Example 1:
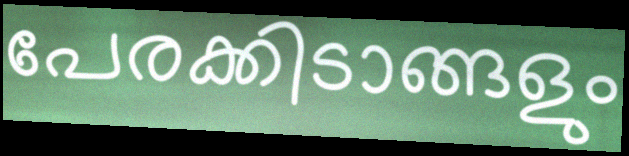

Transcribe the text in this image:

പേരക്കിടാങ്ങളും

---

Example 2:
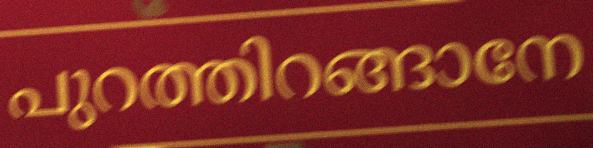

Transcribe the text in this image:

പുറത്തിറങ്ങാനേ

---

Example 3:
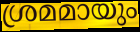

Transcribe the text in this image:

ശ്രമമായും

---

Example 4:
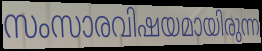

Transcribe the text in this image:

സംസാരവിഷയമായിരുന്ന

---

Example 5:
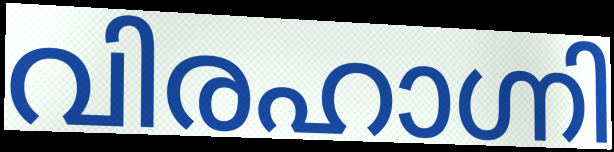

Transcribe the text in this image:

വിരഹാഗ്നി